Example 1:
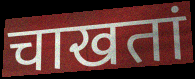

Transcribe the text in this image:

चाखतां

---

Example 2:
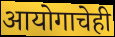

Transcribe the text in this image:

आयोगाचेही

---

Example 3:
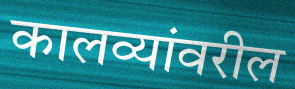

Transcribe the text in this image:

कालव्यांवरील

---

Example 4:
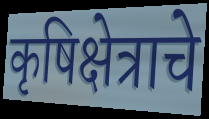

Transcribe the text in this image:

कृषिक्षेत्राचे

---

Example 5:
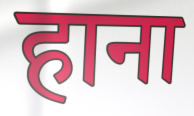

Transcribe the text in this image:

हाना